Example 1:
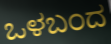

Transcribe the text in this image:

ಒಳಬಂದ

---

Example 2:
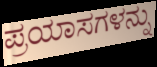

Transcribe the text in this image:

ಪ್ರಯಾಸಗಳನ್ನು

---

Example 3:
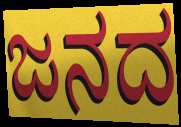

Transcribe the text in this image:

ಜನದ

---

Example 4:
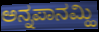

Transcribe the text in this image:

ಅನ್ನಪಾನಮ್ಹಿ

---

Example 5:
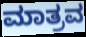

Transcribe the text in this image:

ಮಾತ್ರವ